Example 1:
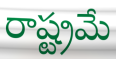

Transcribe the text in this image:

రాష్ట్రమే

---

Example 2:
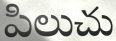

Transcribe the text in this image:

పిలుచు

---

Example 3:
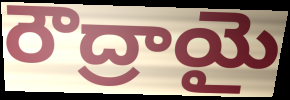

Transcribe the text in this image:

రౌద్రాయై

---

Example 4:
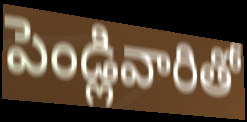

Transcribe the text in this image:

పెండ్లివారితో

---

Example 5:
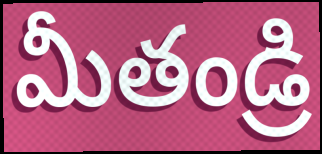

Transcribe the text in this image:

మీతండ్రి